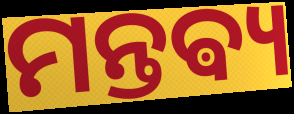
ମନ୍ତଵ୍ୟ